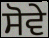
ਸੋਵੇ